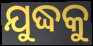
ଯୁଦ୍ଧକୁ